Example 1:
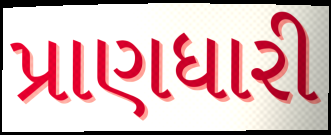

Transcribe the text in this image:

પ્રાણધારી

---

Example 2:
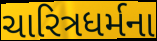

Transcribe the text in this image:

ચારિત્રધર્મના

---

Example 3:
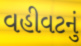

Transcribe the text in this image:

વહીવટનું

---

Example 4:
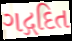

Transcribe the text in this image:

ગદ્ગદિત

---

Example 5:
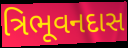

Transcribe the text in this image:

ત્રિભૂવનદાસ